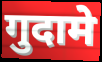
गुदामे